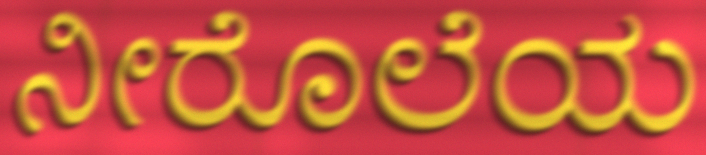
ನೀರೊಲೆಯ